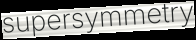
supersymmetry